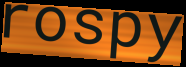
rospy